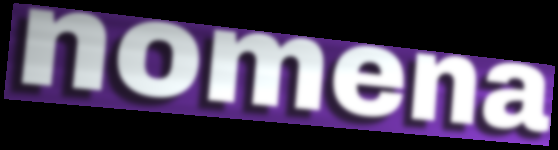
nomena